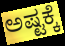
ಅಷ್ಟಕ್ಕೆ